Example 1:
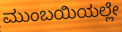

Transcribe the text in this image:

ಮುಂಬಯಿಯಲ್ಲೇ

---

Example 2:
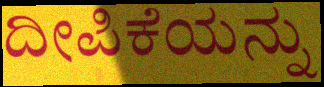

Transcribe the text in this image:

ದೀಪಿಕೆಯನ್ನು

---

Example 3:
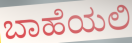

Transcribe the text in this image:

ಬಾಹೆಯಲಿ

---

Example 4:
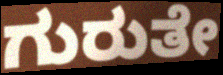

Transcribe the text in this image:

ಗುರುತೇ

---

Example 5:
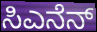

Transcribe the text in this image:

ಸಿಎನೆನ್